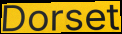
Dorset